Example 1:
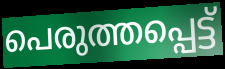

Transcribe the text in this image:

പെരുത്തപ്പെട്ട്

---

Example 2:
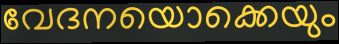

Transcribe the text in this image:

വേദനയൊക്കെയും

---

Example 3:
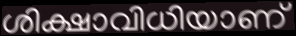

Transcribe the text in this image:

ശിക്ഷാവിധിയാണ്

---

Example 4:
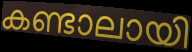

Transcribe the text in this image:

കണ്ടാലായി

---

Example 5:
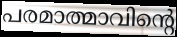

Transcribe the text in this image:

പരമാത്മാവിന്റെ